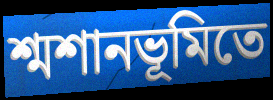
শ্মশানভূমিতে